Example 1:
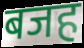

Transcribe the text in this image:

बजह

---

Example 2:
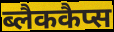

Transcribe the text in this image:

ब्लैककैप्स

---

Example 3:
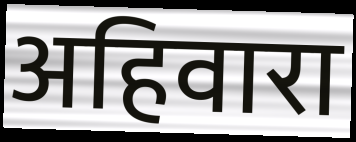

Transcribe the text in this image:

अहिवारा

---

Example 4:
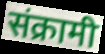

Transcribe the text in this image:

संक्रामी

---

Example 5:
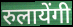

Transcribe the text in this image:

रुलायेंगी